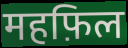
महफ़िल